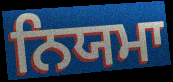
ਨਿਯਮਾ